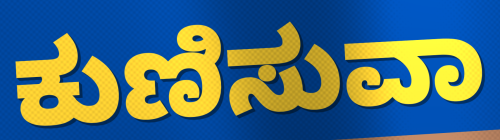
ಕುಣಿಸುವಾ